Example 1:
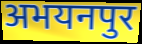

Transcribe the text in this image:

अभयनपुर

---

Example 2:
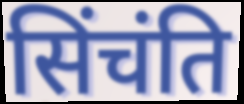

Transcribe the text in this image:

सिंचंति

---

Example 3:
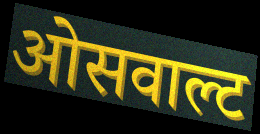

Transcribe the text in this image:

ओसवाल्ट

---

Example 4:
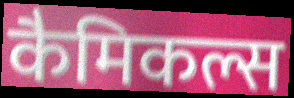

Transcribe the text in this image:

कैमिकल्स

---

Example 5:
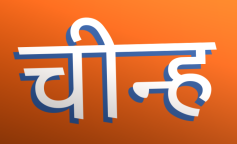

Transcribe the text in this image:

चीन्ह